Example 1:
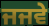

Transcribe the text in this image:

ਜਜਵੇ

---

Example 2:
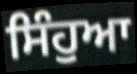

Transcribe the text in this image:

ਸਿੰਹੁਆ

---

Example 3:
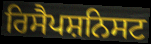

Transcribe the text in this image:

ਰਿਸੈਪਸ਼ਨਿਸਟ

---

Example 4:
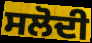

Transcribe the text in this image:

ਸਲੋਦੀ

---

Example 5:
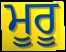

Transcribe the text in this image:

ਮੂਰੂ